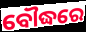
ବୌଦ୍ଧରେ